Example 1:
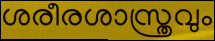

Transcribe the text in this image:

ശരീരശാസ്ത്രവും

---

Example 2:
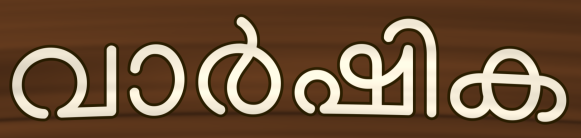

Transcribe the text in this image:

വാർഷിക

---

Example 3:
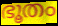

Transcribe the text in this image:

ഭൂതം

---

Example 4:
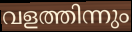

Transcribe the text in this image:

വളത്തിന്നും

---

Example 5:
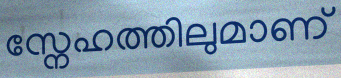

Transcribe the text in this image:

സ്നേഹത്തിലുമാണ്